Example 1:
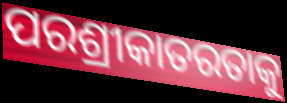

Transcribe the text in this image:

ପରଶ୍ରୀକାତରତାକୁ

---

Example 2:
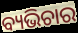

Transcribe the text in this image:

ବ୍ୟଭିଚାର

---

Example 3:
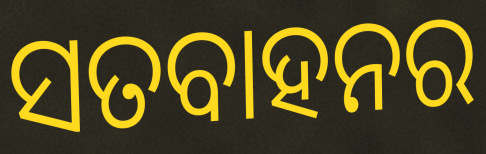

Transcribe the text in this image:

ସତବାହନର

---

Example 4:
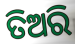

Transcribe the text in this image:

ତିଅରି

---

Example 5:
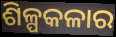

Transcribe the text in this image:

ଶିଳ୍ପକଳାର